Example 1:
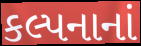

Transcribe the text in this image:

કલ્પનાનાં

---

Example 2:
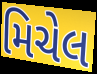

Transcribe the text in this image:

મિચેલ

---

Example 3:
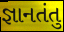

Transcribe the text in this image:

જ્ઞાનતંતુ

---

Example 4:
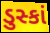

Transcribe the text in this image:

ડુસ્કાં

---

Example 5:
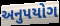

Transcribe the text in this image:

અનુપયોગ